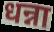
धन्ना